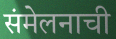
संमेलनाची